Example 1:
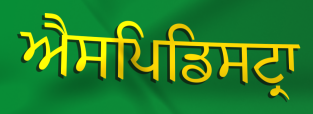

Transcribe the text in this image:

ਐਸਪਿਡਿਸਟ੍ਰਾ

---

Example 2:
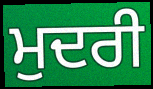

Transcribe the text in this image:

ਮੁਦਰੀ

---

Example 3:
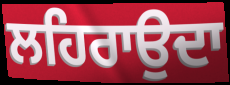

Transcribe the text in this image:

ਲਹਿਰਾਉਦਾ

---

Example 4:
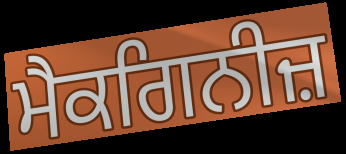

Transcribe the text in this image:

ਮੈਕਗਿਨੀਜ਼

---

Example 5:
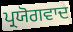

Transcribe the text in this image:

ਪ੍ਰਯੋਗਵਾਦ